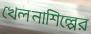
খেলনাশিল্পের